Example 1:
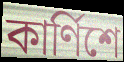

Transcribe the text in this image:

কার্ণিশে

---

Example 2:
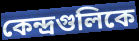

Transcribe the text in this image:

কেন্দ্রগুলিকে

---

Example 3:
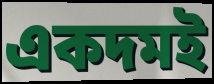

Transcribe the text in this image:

একদমই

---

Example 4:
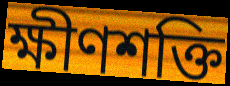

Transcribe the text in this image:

ক্ষীণশক্তি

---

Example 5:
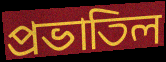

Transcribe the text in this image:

প্রভাতিল